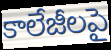
కాలేజీలపై